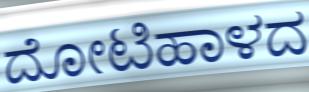
ದೋಟಿಹಾಳದ